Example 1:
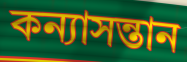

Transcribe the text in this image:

কন্যাসন্তান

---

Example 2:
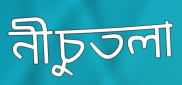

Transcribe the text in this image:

নীচুতলা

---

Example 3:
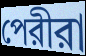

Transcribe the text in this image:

পেরীরা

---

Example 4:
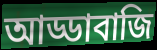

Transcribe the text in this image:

আড্ডাবাজি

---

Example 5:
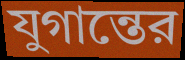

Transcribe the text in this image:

যুগান্তের